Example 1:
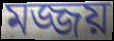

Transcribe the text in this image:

মজ্জয়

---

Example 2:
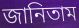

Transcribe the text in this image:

জানিতাম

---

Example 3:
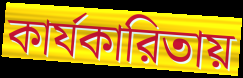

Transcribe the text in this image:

কার্যকারিতায়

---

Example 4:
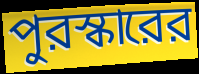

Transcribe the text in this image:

পুরস্কারের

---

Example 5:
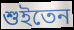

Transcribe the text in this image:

শুইতেন